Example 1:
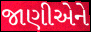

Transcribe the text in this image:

જાણીએને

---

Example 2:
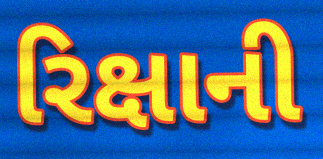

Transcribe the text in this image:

રિક્ષાની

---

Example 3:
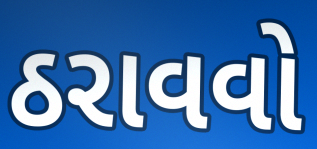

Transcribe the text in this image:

ઠરાવવો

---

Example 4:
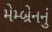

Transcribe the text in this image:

મેમ્બ્રેનનું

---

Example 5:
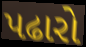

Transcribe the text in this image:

પઢારો